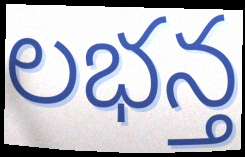
లభన్త